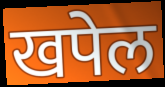
खपेल